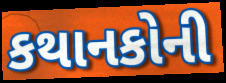
કથાનકોની